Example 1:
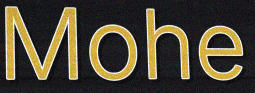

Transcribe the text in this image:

Mohe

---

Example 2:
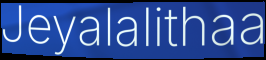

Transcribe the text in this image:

Jeyalalithaa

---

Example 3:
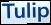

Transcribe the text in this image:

Tulip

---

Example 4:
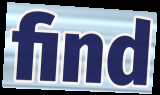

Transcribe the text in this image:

find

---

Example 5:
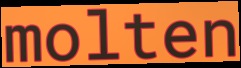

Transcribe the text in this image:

molten